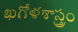
ఖగోళశాస్త్రం